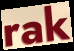
rak